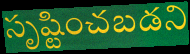
సృష్టించబడని